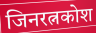
जिनरत्नकोश